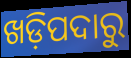
ଖଡ଼ିପଦାରୁ